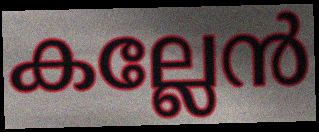
കല്ലേൻ